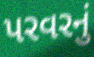
પરવરનું